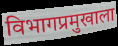
विभागप्रमुखाला